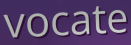
vocate